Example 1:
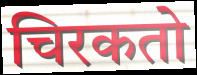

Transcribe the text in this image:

चिरकतो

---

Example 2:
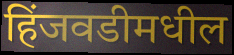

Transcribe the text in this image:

हिंजवडीमधील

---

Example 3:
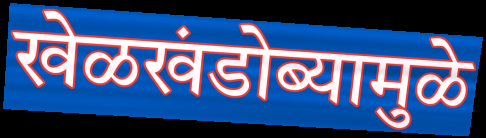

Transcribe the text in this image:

खेळखंडोब्यामुळे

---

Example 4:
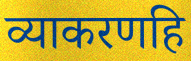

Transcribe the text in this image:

व्याकरणहि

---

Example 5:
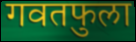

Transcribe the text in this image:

गवतफुला